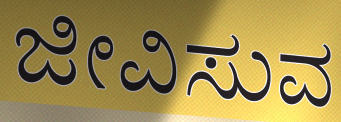
ಜೀವಿಸುವ